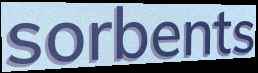
sorbents